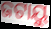
ଜଟାୟୁ